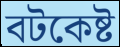
বটকেষ্ট